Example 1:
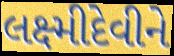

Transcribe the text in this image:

લક્ષ્મીદેવીને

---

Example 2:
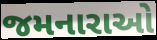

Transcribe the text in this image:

જમનારાઓ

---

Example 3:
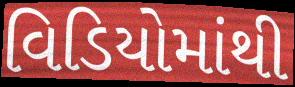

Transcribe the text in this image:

વિડિયોમાંથી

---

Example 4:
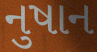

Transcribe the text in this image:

નુષાન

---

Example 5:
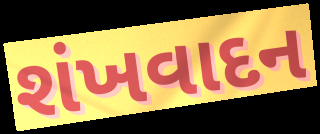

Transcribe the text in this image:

શંખવાદન